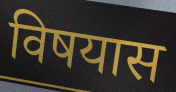
विषयास